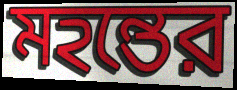
মহন্তের